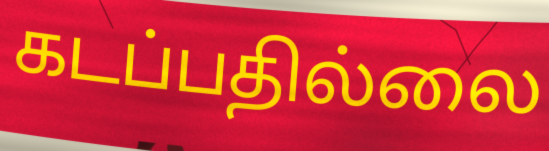
கடப்பதில்லை